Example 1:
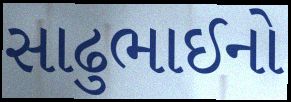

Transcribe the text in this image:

સાઢુભાઈનો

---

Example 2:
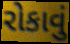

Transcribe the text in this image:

રોકાવું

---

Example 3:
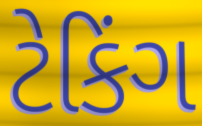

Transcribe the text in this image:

ટેકિંગ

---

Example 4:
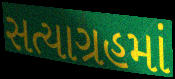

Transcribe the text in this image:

સત્યાગ્રહમાં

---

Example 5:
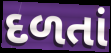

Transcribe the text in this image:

દળતાં